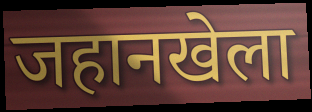
जहानखेला